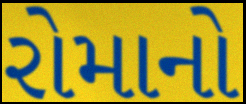
રોમાનો